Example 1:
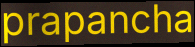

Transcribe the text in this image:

prapancha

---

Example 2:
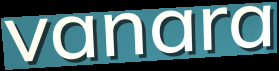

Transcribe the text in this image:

vanara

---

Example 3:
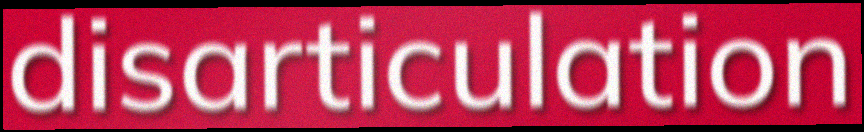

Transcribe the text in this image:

disarticulation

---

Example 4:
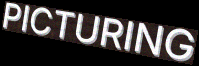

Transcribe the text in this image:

PICTURING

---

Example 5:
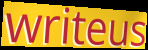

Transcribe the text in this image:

writeus